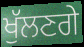
ਖੁੱਲਣਗੇ